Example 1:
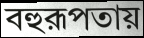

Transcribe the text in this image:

বহুরূপতায়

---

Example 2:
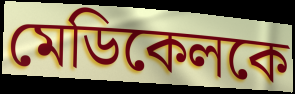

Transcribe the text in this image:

মেডিকেলকে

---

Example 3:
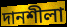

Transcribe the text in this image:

দানশীলা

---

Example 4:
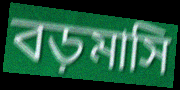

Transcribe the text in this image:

বড়মাসি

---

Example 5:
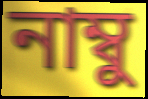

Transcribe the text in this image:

নাম্বু